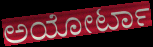
ಅಯೋರ್ಟಾ